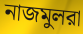
নাজমুলরা